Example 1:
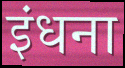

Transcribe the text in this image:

इंधना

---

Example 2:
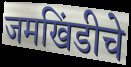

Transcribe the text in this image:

जमखिंडीचे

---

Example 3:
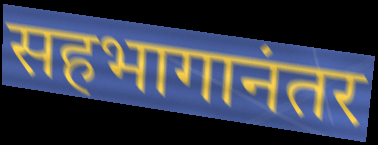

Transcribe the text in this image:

सहभागानंतर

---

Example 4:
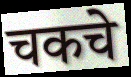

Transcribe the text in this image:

चकचे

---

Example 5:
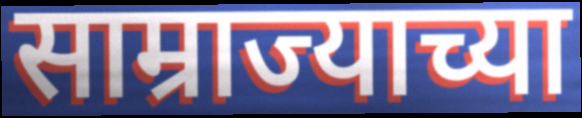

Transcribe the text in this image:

साम्राज्याच्या